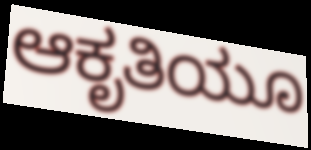
ಆಕೃತಿಯೂ